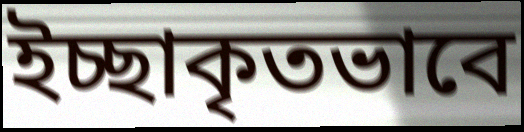
ইচ্ছাকৃতভাবে